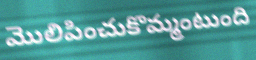
మొలిపించుకొమ్మంటుంది